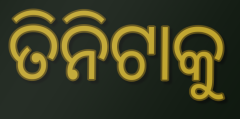
ତିନିଟାକୁ